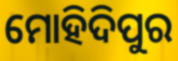
ମୋହିଦିପୁର